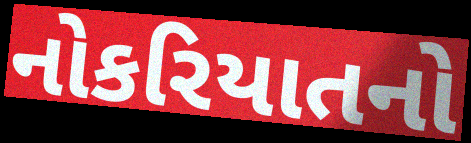
નોકરિયાતનો